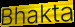
Bhakta